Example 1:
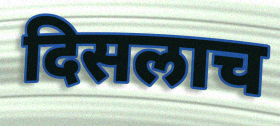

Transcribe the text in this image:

दिसलाच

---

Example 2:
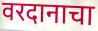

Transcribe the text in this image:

वरदानाचा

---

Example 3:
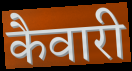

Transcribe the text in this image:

कैवारी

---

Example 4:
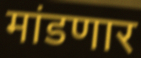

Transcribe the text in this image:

मांडणार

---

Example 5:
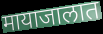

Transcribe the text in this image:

मायाजालात